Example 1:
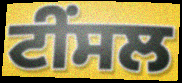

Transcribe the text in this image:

ਟੀਂਸਲ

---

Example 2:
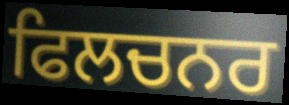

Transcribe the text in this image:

ਫਿਲਚਨਰ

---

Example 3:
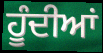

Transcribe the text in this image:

ਹੂੰਦੀਆਂ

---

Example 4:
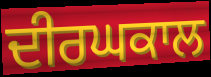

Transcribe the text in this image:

ਦੀਰਘਕਾਲ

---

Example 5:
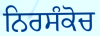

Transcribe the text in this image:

ਨਿਰਸੰਕੋਚ